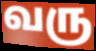
வரு